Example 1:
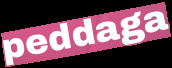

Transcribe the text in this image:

peddaga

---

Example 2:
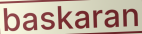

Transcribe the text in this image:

baskaran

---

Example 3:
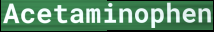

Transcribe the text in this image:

Acetaminophen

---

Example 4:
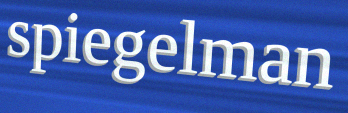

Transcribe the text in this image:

spiegelman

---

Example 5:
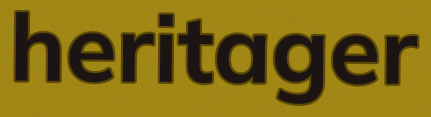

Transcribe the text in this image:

heritager